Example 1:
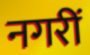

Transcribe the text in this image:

नगरीं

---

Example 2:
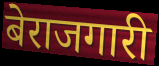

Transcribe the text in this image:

बेराजगारी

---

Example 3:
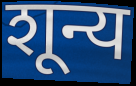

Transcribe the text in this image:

शून्य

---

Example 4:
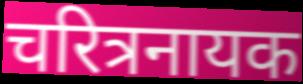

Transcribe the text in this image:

चरित्रनायक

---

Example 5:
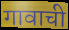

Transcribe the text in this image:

गावाची